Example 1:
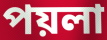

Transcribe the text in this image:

পয়লা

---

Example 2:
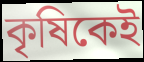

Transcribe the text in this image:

কৃষিকেই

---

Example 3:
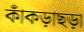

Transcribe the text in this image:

কাঁকড়াছড়া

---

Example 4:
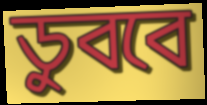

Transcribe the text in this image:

ডুববে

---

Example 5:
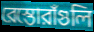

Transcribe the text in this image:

রেস্তোরাঁগুলি